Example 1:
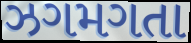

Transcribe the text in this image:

ઝગમગતા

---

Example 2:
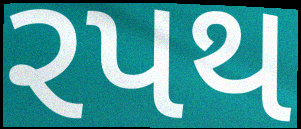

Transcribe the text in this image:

રપથ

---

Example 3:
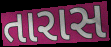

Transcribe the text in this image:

તારાસ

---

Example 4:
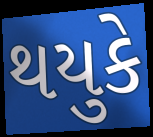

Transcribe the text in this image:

થયુકે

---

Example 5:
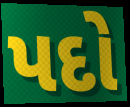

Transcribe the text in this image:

પદો